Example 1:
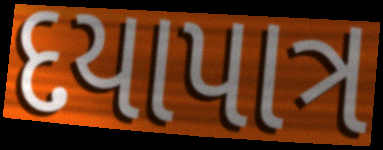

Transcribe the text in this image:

દયાપાત્ર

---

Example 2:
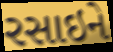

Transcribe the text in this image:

રસાઇને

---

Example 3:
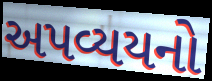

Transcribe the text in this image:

અપવ્યયનો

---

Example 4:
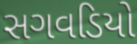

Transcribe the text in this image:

સગવડિયો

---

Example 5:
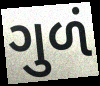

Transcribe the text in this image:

ગુળં